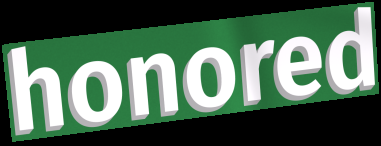
honored